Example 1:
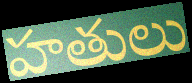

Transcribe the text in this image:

హతులు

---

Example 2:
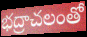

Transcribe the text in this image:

భద్రాచలంతో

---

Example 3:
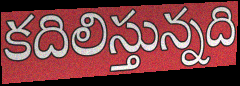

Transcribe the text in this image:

కదిలిస్తున్నది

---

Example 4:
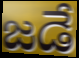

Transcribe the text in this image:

జడే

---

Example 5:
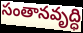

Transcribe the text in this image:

సంతానవృద్ధి